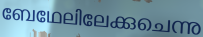
ബേഥേലിലേക്കുചെന്നു